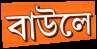
বাউলে